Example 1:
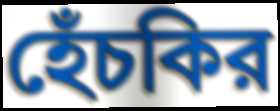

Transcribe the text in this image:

হেঁচকির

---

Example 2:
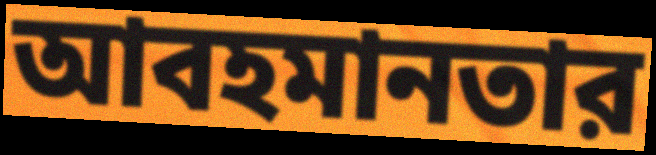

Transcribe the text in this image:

আবহমানতার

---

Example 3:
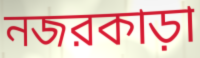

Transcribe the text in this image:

নজরকাড়া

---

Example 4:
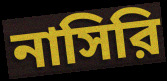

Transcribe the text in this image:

নাসিরি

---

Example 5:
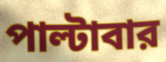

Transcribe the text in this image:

পাল্টাবার